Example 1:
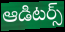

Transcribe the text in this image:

ఆడిటర్స్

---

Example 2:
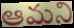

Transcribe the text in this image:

ఆమని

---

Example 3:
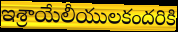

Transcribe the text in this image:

ఇశ్రాయేలీయులకందరికి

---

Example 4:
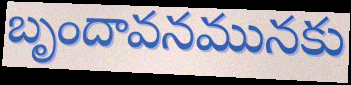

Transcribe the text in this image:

బృందావనమునకు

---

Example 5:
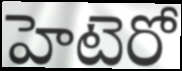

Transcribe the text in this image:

హెటెరో